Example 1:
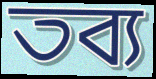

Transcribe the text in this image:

তব্য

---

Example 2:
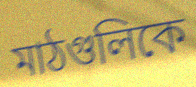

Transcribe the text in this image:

মাঠগুলিকে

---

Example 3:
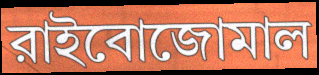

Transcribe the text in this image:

রাইবোজোমাল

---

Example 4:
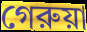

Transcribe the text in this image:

গেরুয়া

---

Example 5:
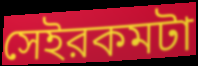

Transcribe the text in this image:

সেইরকমটা